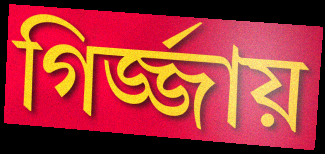
গির্জ্জায়